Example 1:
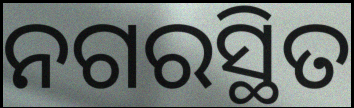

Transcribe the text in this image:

ନଗରସ୍ଥିତ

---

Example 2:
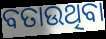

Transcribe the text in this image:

ବତାଉଥିବା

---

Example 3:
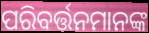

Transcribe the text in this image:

ପରିବର୍ତ୍ତନମାନଙ୍କ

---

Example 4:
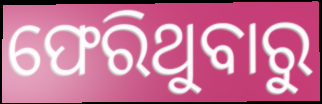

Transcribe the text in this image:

ଫେରିଥୁବାରୁ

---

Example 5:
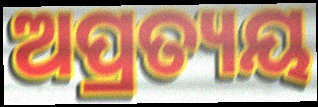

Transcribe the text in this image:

ଅପ୍ରତ୍ୟୟ